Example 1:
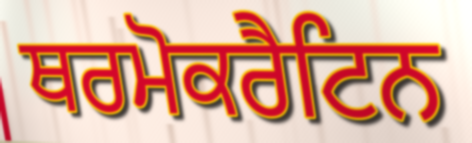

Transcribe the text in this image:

ਥਰਮੋਕਰੈਟਿਨ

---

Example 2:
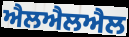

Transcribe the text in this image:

ਐਲਐਲਐਲ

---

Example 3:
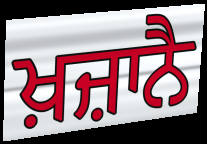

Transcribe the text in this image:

ਖ਼ਜ਼ਾਨੈ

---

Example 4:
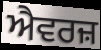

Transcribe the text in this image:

ਐਵਰਜ਼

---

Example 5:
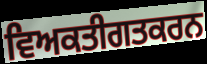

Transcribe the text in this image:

ਵਿਅਕਤੀਗਤਕਰਨ